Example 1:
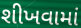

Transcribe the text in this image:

શીખવામાં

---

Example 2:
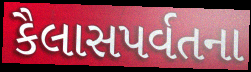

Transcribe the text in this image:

કૈલાસપર્વતના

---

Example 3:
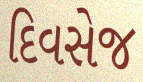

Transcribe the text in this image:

દિવસેજ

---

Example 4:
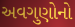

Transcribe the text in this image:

અવગુણોનો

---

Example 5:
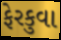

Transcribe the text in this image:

ફેરકુવા